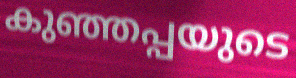
കുഞ്ഞപ്പയുടെ